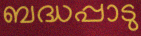
ബദ്ധപ്പാടു